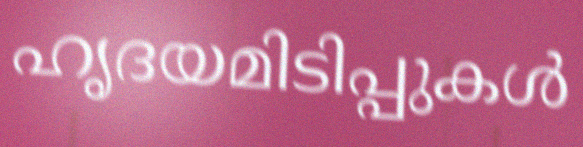
ഹൃദയമിടിപ്പുകൾ